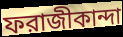
ফরাজীকান্দা